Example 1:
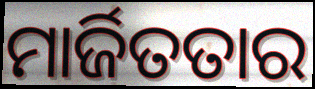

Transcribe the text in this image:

ମାର୍ଜିତତାର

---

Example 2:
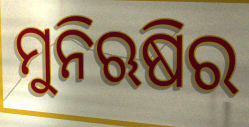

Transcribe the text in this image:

ମୁନିଋଷିର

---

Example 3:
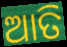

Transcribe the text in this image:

ଆତି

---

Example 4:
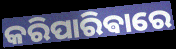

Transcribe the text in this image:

କରିପାରିଵାରେ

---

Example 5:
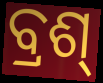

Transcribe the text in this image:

ବ୍ରଶ୍